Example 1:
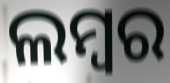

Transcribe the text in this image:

ଲମ୍ୱର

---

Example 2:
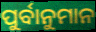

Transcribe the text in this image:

ପୁର୍ବାନୁମାନ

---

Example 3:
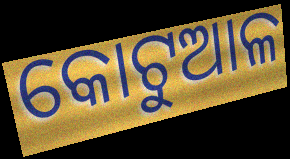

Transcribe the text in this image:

କୋଟୁଆଳ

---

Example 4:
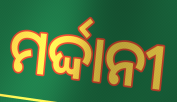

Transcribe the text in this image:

ମର୍ଦ୍ଦାନୀ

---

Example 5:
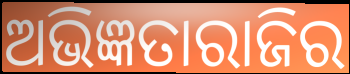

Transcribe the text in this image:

ଅଭିଜ୍ଞତାରାଜିର